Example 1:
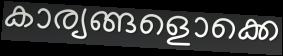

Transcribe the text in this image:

കാര്യങ്ങളൊക്കെ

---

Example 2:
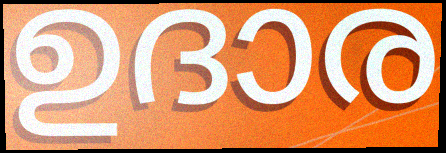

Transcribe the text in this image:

ഉദാര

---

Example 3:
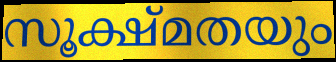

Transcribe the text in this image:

സൂക്ഷ്മതയും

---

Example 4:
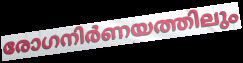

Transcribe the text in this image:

രോഗനിർണയത്തിലും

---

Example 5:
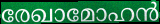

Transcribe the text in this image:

രേഖാമോഹൻ